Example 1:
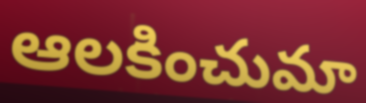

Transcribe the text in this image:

ఆలకించుమా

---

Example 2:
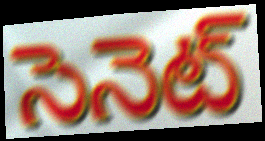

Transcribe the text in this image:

సెనెట్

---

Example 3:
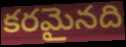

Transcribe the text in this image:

కరమైనది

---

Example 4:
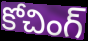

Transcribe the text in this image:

కోచింగ్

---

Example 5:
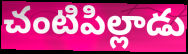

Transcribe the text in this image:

చంటిపిల్లాడు